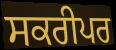
ਸਕਰੀਪਰ